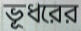
ভূধরের